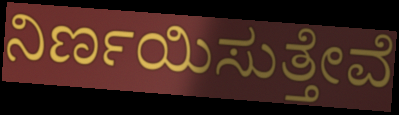
ನಿರ್ಣಯಿಸುತ್ತೇವೆ